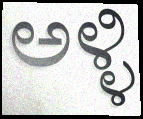
ಅಳ್ಳಿ